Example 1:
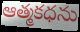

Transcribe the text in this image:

ఆత్మకధను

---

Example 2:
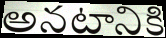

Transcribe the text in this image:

అనటానికి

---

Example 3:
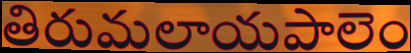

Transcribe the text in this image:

తిరుమలాయపాలెం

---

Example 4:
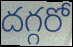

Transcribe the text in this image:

దగ్గరో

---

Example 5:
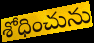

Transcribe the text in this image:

శోధించును